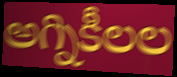
అగ్నికీలల